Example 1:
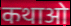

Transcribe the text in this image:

कथाओ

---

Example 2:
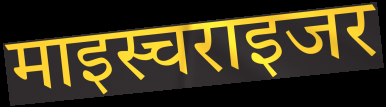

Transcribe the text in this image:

माइस्चराइजर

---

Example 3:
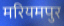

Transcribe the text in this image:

मरियमपुर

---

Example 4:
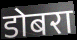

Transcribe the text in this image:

डोबरा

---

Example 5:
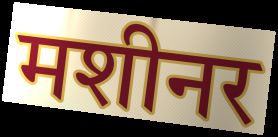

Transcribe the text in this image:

मशीनर